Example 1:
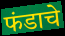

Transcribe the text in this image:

फंडाचे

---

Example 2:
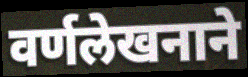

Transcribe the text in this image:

वर्णलेखनाने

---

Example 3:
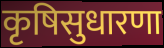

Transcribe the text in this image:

कृषिसुधारणा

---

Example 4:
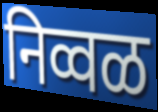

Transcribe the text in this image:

निव्‍वळ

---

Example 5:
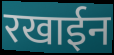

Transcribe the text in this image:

रखाईन